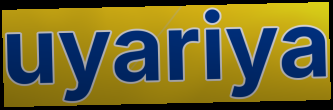
uyariya